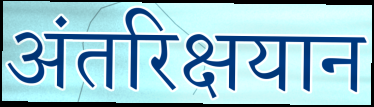
अंतरिक्षयान